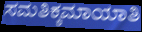
ಸಮತಿಕ್ಕಮಾಯಾತಿ